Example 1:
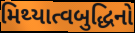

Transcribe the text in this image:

મિથ્યાત્વબુદ્ધિનો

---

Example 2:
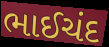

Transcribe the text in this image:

ભાઈચંદ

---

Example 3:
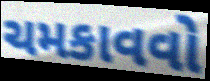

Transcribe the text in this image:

ચમકાવવો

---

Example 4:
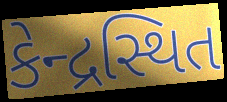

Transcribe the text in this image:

કેન્દ્રસ્થિત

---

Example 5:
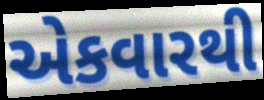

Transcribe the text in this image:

એકવારથી